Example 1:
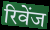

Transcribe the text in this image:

रिवेंज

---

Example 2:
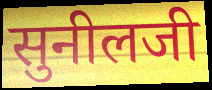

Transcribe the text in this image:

सुनीलजी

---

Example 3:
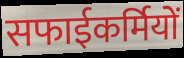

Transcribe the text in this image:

सफाईकर्मियों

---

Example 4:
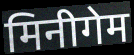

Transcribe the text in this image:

मिनीगेम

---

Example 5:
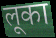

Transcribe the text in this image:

लूका